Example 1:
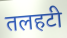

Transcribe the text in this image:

तलहटी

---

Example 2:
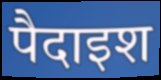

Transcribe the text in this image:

पैदाइश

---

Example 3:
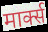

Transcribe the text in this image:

मार्क्स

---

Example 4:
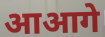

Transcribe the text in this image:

आआगे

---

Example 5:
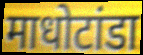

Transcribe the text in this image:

माधोटांडा